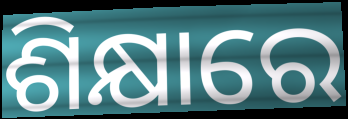
ଶିକ୍ଷାରେ